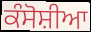
ਕੰਸੋਸ਼ੀਆ